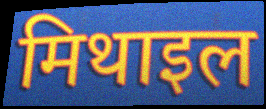
मिथाइल